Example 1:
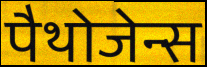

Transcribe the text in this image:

पैथोजेन्स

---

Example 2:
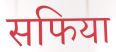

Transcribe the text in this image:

सफिया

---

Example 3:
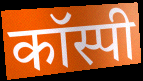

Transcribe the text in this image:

कॉस्पी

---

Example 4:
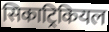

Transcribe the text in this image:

सिकाट्रिकियल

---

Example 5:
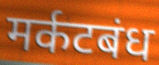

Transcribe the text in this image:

मर्कटबंध